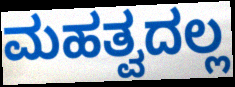
ಮಹತ್ವದಲ್ಲ